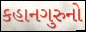
કહાનગુરુનો